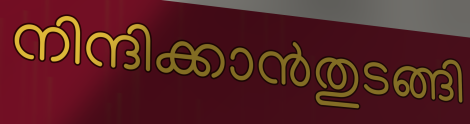
നിന്ദിക്കാൻതുടങ്ങി